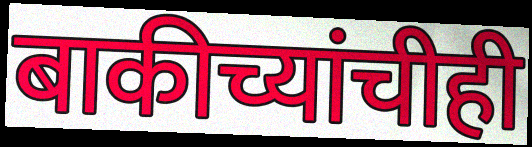
बाकीच्यांचीही